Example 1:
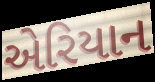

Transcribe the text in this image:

એરિયાન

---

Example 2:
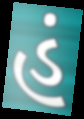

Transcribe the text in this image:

હં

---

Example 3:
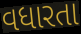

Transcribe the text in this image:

વધારતા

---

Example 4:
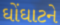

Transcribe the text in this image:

ઘોંઘાટને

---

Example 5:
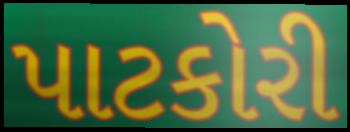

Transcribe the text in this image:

પાટકોરી